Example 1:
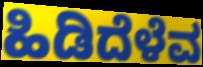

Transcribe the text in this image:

ಹಿಡಿದೆಳೆವ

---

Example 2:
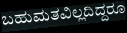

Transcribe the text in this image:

ಬಹುಮತವಿಲ್ಲದಿದ್ದರೂ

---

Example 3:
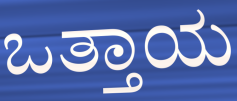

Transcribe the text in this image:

ಒತ್ತಾಯ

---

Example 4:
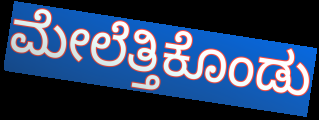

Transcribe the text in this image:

ಮೇಲೆತ್ತಿಕೊಂಡು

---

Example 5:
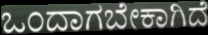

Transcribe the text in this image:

ಒಂದಾಗಬೇಕಾಗಿದೆ